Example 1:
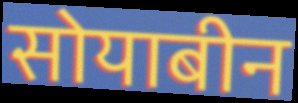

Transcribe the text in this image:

सोयाबीन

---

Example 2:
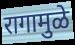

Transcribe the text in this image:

रागामुळे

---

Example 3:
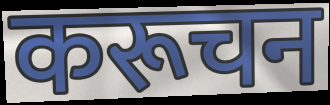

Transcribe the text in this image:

करूचन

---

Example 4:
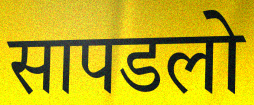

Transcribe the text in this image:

सापडलो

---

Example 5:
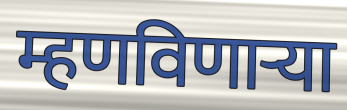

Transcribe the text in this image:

म्हणविणाऱ्या